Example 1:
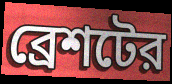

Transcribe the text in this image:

ব্রেশটের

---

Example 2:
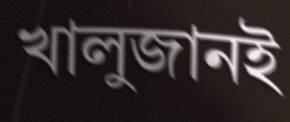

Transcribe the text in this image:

খালুজানই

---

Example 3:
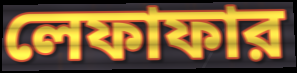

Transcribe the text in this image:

লেফাফার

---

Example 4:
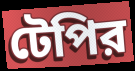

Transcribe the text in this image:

টেপির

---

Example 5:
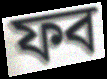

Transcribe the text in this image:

ফব